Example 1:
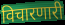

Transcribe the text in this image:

विचारणारी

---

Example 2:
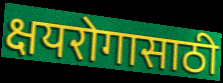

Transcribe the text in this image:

क्षयरोगासाठी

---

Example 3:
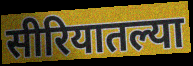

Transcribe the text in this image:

सीरियातल्या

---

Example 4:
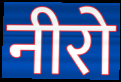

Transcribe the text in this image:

नीरो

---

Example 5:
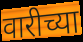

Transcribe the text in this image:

वारीच्या